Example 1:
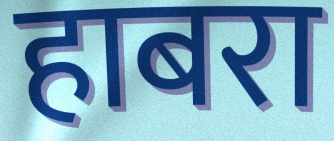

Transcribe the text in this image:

हाबरा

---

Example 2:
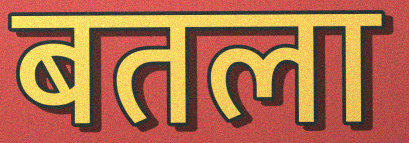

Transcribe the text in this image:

बतला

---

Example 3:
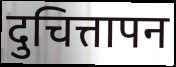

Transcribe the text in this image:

दुचित्तापन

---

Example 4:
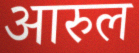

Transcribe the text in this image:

आरुल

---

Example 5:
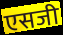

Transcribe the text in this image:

एसजी